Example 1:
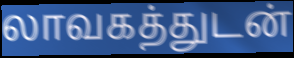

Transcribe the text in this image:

லாவகத்துடன்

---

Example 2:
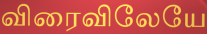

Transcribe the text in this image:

விரைவிலேயே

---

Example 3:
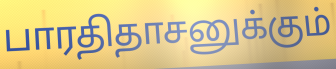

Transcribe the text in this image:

பாரதிதாசனுக்கும்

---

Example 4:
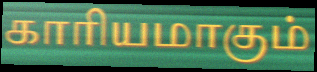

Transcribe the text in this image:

காரியமாகும்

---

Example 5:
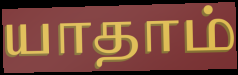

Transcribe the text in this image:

யாதாம்